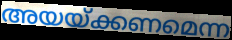
അയയ്ക്കണമെന്ന